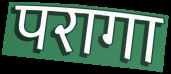
परागा